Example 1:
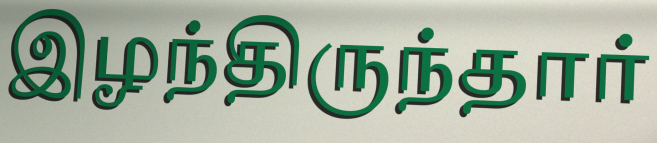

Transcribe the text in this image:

இழந்திருந்தார்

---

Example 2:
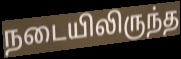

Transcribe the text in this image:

நடையிலிருந்த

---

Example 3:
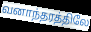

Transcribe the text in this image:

வனாந்தரத்திலே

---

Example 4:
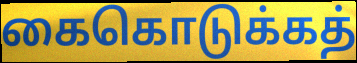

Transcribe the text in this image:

கைகொடுக்கத்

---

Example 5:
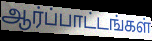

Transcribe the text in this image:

ஆர்ப்பாட்டங்கள்